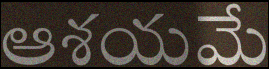
ఆశయమే